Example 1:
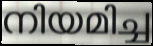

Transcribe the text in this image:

നിയമിച്ച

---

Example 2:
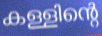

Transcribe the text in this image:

കള്ളിന്റെ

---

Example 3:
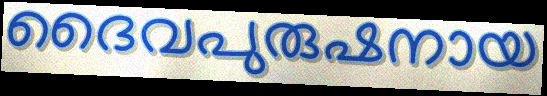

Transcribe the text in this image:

ദൈവപുരുഷനായ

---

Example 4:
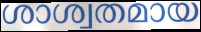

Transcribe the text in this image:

ശാശ്വതമായ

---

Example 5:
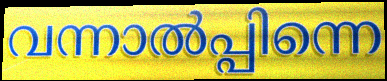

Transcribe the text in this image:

വന്നാൽപ്പിന്നെ